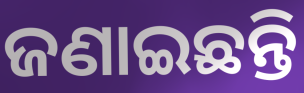
ଜଣାଇଛନ୍ତି